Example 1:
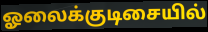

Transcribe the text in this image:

ஓலைக்குடிசையில்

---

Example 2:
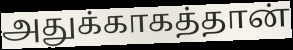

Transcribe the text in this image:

அதுக்காகத்தான்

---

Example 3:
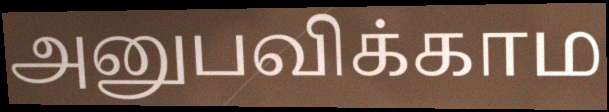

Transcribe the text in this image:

அனுபவிக்காம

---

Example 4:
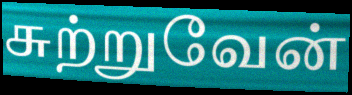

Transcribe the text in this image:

சுற்றுவேன்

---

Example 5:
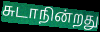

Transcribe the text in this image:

சுடாநின்றது